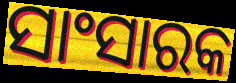
ସାଂସାରକ